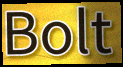
Bolt